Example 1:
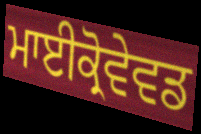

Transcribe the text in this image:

ਮਾਈਕ੍ਰੋਵੇਵਡ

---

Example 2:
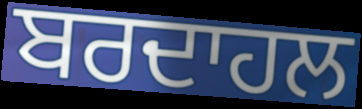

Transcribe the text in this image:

ਬਰਦਾਹਲ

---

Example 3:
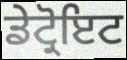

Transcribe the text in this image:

ਡੇਟ੍ਰੋਇਟ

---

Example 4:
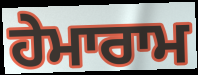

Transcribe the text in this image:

ਹੇਮਾਰਾਮ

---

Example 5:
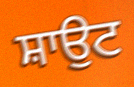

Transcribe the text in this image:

ਸ਼ਾਉਟ